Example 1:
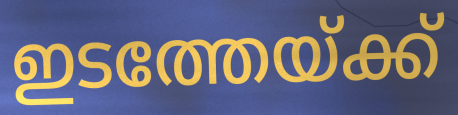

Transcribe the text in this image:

ഇടത്തേയ്ക്ക്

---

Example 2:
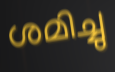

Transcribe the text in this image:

ശമിച്ചു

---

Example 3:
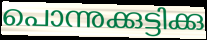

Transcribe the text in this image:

പൊന്നുക്കുട്ടിക്കു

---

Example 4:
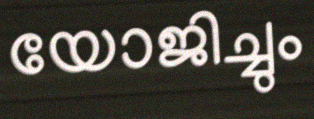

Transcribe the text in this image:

യോജിച്ചും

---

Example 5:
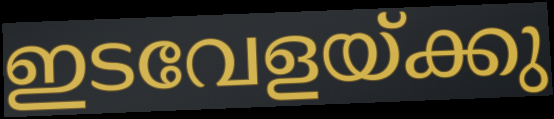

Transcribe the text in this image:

ഇടവേളയ്ക്കു